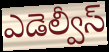
ఎడెల్వీస్